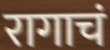
रागाचं